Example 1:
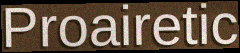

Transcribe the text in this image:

Proairetic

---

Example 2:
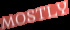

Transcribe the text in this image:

MOSTLY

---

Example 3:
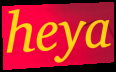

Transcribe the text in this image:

heya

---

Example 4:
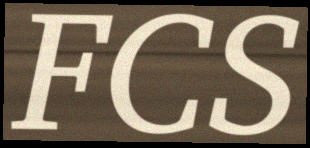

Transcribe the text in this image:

FCS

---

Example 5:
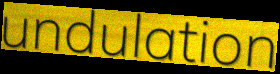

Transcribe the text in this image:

undulation